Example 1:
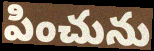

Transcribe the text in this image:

పించును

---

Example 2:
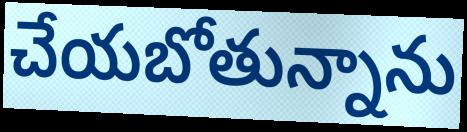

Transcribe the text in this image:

చేయబోతున్నాను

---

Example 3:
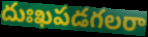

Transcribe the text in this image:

దుఃఖపడగలరా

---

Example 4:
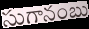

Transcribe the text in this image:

సుగానంబు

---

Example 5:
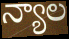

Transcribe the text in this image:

న్యాల